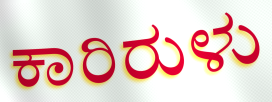
ಕಾರಿರುಳು